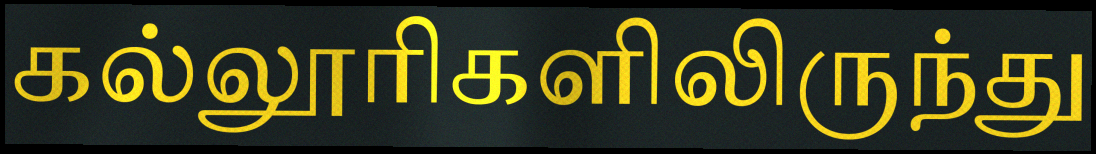
கல்லூரிகளிலிருந்து